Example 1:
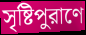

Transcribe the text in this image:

সৃষ্টিপুরাণে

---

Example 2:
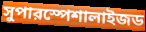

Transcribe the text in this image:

সুপারস্পেশালাইজড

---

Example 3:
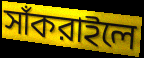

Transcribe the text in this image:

সাঁকরাইলে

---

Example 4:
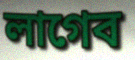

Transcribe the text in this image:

লাগেব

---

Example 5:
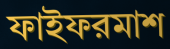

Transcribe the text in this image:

ফাইফরমাশ